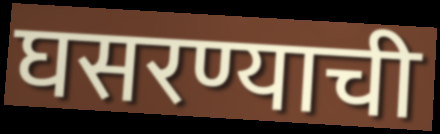
घसरण्याची